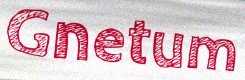
Gnetum